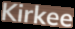
Kirkee